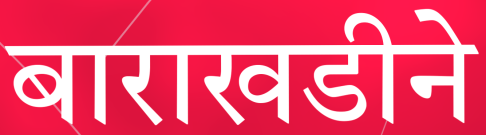
बाराखडीने